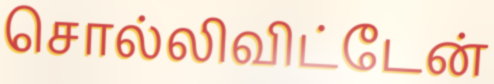
சொல்லிவிட்டேன்